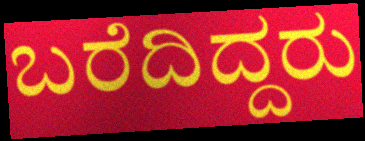
ಬರೆದಿದ್ದರು